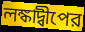
লঙ্কাদ্বীপের